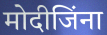
मोदीजिंना